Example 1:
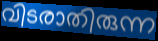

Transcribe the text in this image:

വിടരാതിരുന്ന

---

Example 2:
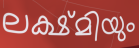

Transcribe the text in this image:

ലക്ഷ്മിയും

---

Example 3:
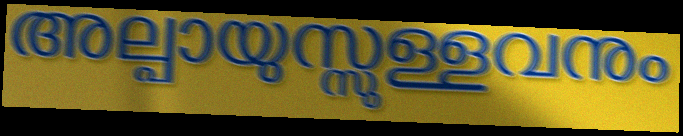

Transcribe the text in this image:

അല്പായുസ്സുള്ളവനും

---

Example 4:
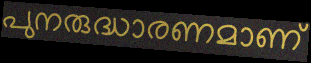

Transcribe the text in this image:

പുനരുദ്ധാരണമാണ്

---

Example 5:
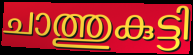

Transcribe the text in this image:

ചാത്തുകുട്ടി